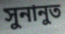
সুনানুত